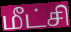
மீட்சி